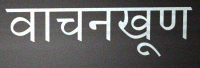
वाचनखूण